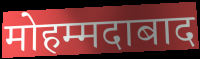
मोहम्मदाबाद